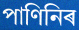
পাণিনিৰ